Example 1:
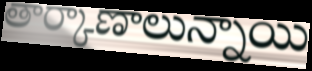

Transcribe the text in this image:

తార్కాణాలున్నాయి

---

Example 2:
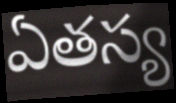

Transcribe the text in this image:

ఏతస్య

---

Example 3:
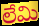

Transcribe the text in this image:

లేమి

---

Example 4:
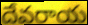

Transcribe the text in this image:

దేవరాయ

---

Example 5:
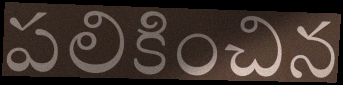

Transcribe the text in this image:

పలికించిన